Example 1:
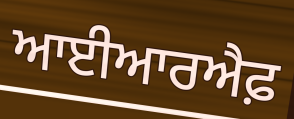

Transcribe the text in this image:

ਆਈਆਰਐਫ਼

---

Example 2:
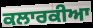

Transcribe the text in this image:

ਕਲਾਰਕੀਆ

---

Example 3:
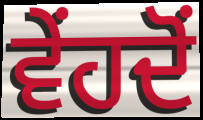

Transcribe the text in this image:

ਵੇਂਹਦੋਂ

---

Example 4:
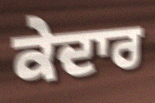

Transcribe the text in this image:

ਕੇਦਾਰ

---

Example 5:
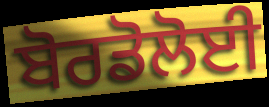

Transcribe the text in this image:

ਬੋਰਡੋਲੋਈ